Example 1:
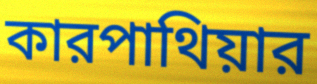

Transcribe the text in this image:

কারপাথিয়ার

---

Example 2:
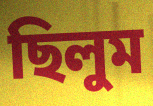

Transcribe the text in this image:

ছিলুম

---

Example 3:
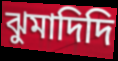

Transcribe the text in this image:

ঝুমাদিদি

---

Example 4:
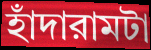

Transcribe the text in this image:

হাঁদারামটা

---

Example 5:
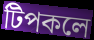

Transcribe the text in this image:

টিপকলে